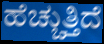
ಹೆಚ್ಚುತ್ತಿದೆ